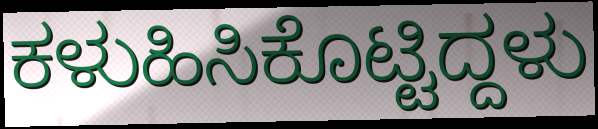
ಕಳುಹಿಸಿಕೊಟ್ಟಿದ್ದಳು